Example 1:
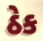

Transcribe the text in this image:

ઠેક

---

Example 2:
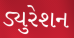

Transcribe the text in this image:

ડ્યુરેશન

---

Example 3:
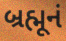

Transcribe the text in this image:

બ્રહ્મૂનં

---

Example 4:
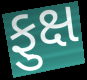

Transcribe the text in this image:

ફુક્ષ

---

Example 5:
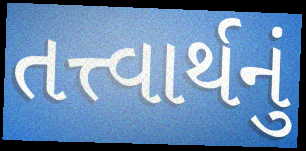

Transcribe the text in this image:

તત્ત્વાર્થનું